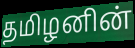
தமிழனின்